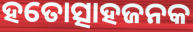
ହତୋତ୍ସାହଜନକ